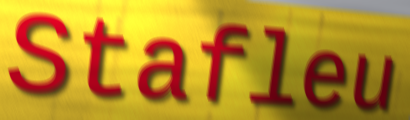
Stafleu